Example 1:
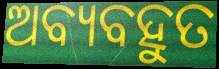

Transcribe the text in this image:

ଅବ୍ୟବହୁତ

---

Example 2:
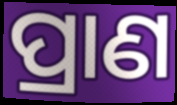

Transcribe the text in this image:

ପ୍ରାଣ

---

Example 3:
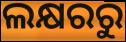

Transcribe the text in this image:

ଲକ୍ଷରରୁ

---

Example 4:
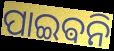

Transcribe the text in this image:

ପାଇଵନି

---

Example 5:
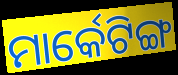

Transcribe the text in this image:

ମାର୍କେଟିଙ୍ଗ